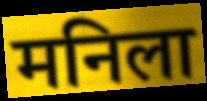
मनिला